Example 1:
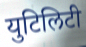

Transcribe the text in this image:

युटिलिटी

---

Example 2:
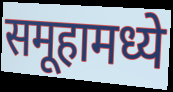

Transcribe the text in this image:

समूहामध्ये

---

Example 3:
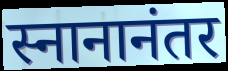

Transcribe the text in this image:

स्नानानंतर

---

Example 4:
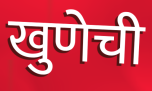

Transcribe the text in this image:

खुणेची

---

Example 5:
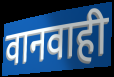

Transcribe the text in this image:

वानवाही